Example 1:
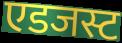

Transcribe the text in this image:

एडजस्ट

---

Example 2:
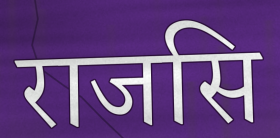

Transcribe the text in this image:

राजसि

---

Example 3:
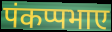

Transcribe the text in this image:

पंकप्पभाए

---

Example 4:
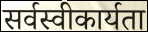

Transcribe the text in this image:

सर्वस्वीकार्यता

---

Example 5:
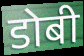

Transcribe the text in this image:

डोबी